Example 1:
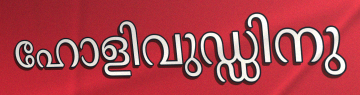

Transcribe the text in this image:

ഹോളിവുഡ്ഡിനു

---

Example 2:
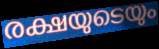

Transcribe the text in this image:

രക്ഷയുടെയും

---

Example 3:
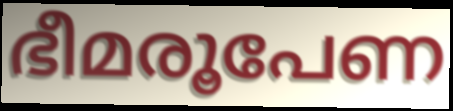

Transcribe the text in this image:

ഭീമരൂപേണ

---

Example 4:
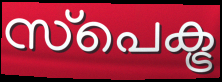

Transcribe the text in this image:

സ്‌പെക്ട്ര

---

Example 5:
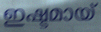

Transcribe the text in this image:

ഇഷ്ടമായ്